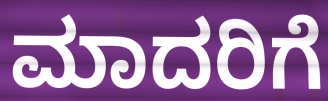
ಮಾದರಿಗೆ